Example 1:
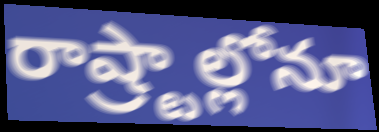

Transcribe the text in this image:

రాష్ర్టాల్లోనూ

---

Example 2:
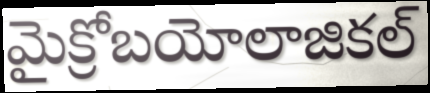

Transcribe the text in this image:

మైక్రోబయోలాజికల్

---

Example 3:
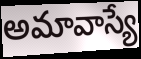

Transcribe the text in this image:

అమావాస్యే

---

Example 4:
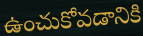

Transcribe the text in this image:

ఉంచుకోవడానికి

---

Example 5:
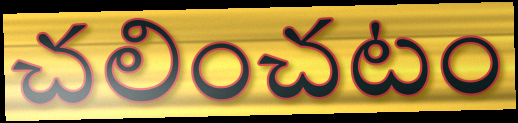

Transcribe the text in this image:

చలించటం